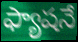
ఫ్యాషనే